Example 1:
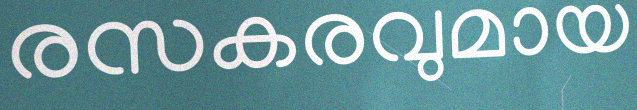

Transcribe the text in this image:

രസകരവുമായ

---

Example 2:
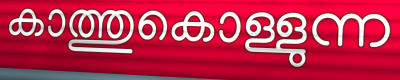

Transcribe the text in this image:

കാത്തുകൊള്ളുന്ന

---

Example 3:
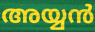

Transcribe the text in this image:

അയ്യൻ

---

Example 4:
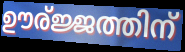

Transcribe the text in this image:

ഊര്ജ്ജത്തിന്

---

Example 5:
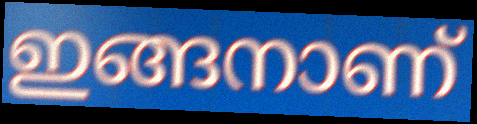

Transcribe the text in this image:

ഇങ്ങനാണ്